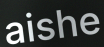
aishe